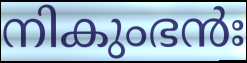
നികുംഭൻഃ